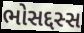
ભોસદ્દસ્સ